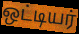
ஒட்டியர்